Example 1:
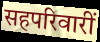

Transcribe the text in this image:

सहपरिवारीं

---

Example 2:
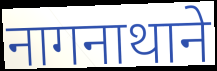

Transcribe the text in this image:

नागनाथाने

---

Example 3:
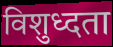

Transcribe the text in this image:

विशुध्दता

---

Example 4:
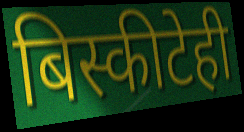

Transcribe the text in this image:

बिस्कीटेही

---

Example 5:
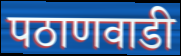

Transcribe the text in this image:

पठाणवाडी